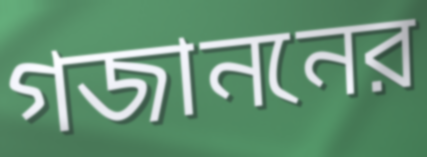
গজাননের